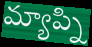
మ్యాప్ని